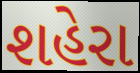
શહેરા